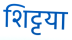
शिट्टया